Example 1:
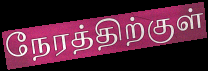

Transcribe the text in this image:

நேரத்திற்குள்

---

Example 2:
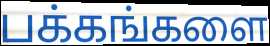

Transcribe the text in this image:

பக்கங்களை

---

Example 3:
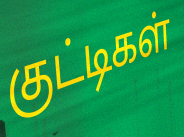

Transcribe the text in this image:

குட்டிகள்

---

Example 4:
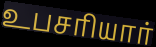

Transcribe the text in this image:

உபசரியார்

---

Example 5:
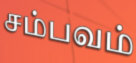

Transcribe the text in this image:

சம்பவம்